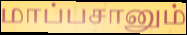
மாப்பசானும்